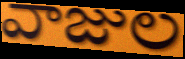
వాజుల